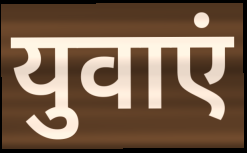
युवाएं